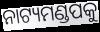
ନାଟ୍ୟମଣ୍ଡପକୁ